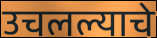
उचलल्याचे